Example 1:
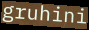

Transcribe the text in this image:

gruhini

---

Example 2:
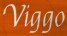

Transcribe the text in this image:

Viggo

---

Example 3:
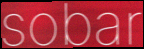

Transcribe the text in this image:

sobar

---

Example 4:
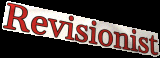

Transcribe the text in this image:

Revisionist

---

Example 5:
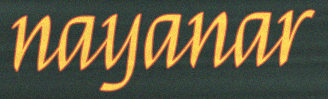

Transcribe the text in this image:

nayanar